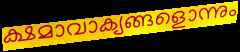
ക്ഷമാവാക്യങ്ങളൊന്നും